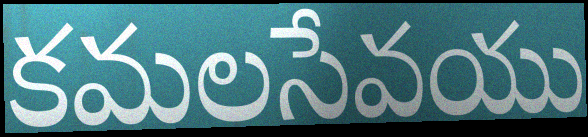
కమలసేవయు